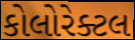
કોલોરેક્ટલ